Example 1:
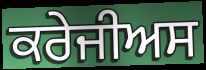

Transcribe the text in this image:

ਕਰੇਜੀਅਸ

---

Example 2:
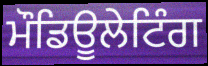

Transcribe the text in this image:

ਮੌਡਿਊਲੇਟਿੰਗ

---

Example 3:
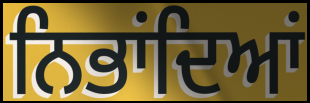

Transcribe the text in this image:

ਨਿਭਾਂਦਿਆਂ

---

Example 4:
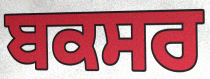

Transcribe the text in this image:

ਬਕਸਰ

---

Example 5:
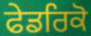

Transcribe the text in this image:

ਫੇਡਰਿਕੋ